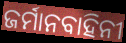
ଜର୍ମାନବାହିନୀ